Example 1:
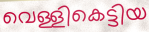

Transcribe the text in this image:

വെള്ളികെട്ടിയ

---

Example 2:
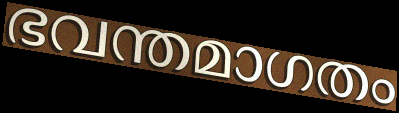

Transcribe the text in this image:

ഭവന്തമാഗതം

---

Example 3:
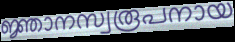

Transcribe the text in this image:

ജ്ഞാനസ്വരൂപനായ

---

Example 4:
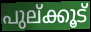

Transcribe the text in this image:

പുല്ക്കൂട്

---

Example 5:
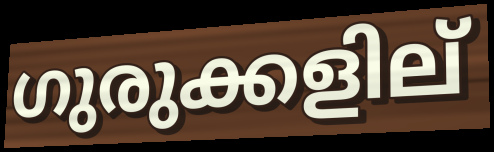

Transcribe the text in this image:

ഗുരുക്കളില്